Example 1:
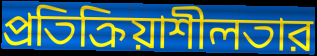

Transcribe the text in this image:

প্রতিক্রিয়াশীলতার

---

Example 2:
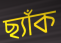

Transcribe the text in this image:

ছ্যাঁক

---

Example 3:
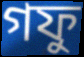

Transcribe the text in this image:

গফু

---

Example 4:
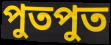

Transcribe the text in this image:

পুতপুত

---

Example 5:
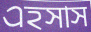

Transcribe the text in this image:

এহসাস